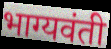
भाग्यवंती